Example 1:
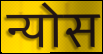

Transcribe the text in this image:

न्योस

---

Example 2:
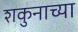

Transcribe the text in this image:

शकुनाच्या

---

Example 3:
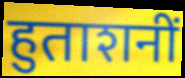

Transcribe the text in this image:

हुताशनीं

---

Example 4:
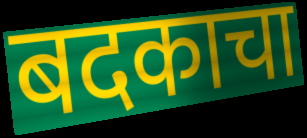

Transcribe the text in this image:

बदकाचा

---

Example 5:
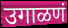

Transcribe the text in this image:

उगाळणं